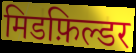
मिडफ़िल्डर